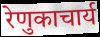
रेणुकाचार्य